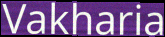
Vakharia